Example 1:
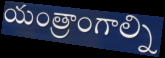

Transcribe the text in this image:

యంత్రాంగాల్ని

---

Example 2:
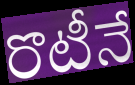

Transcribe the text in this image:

రొటీనే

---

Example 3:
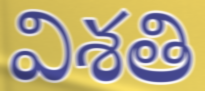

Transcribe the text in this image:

విశతి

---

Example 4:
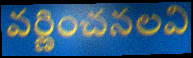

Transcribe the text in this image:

వర్ణించనలవి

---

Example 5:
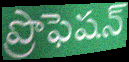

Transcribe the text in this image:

ప్రొఫెషన్